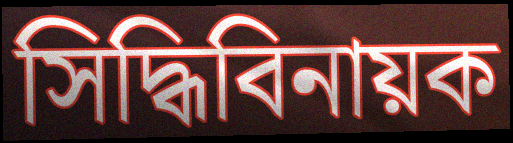
সিদ্ধিবিনায়ক